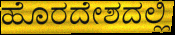
ಹೊರದೇಶದಲ್ಲಿ